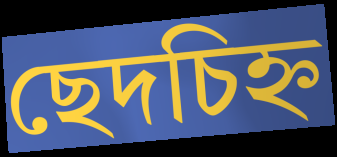
ছেদচিহ্ন